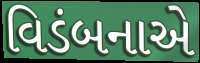
વિડંબનાએ